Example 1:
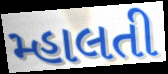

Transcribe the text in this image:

મ્હાલતી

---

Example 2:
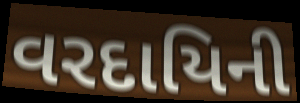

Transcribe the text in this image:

વરદાયિની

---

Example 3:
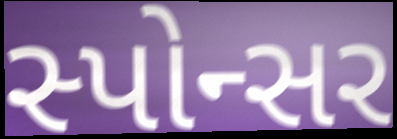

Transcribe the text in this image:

સ્પોન્સર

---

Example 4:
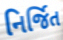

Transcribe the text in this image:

નિર્જિત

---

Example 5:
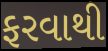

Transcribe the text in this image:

ફરવાથી